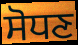
ਸੋਧਣ